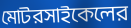
মোটরসাইকেলের